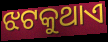
ଝଟକୁଥାଏ